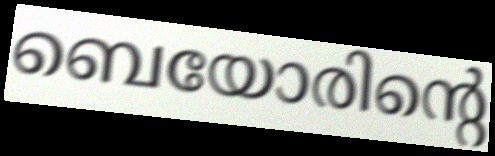
ബെയോരിന്റെ